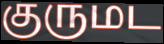
குருமட